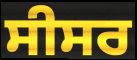
ਸੀਸਰ